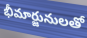
భీమార్జునులతో